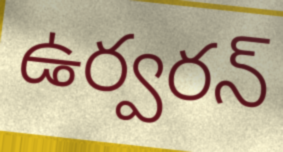
ఉర్వరన్